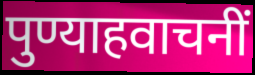
पुण्याहवाचनीं